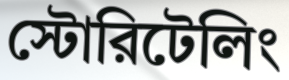
স্টোরিটেলিং